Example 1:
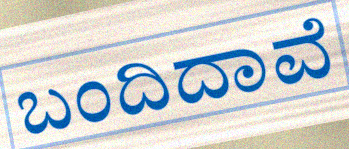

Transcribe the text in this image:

ಬಂದಿದಾವೆ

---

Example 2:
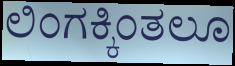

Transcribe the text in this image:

ಲಿಂಗಕ್ಕಿಂತಲೂ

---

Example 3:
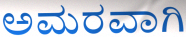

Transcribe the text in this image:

ಅಮರವಾಗಿ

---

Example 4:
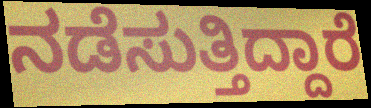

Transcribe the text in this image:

ನಡೆಸುತ್ತಿದ್ದಾರೆ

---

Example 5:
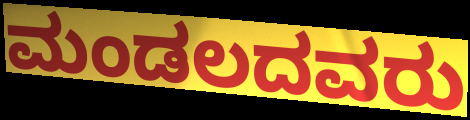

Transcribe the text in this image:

ಮಂಡಲದವರು